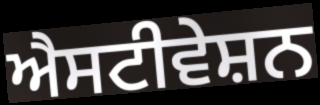
ਐਸਟੀਵੇਸ਼ਨ